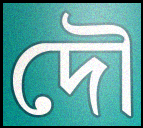
দৌ